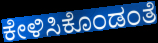
ಕೇಳಿಸಿಕೊಂಡಂತೆ